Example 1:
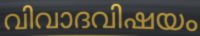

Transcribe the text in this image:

വിവാദവിഷയം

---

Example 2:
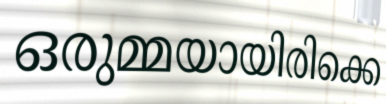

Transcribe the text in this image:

ഒരുമ്മയായിരിക്കെ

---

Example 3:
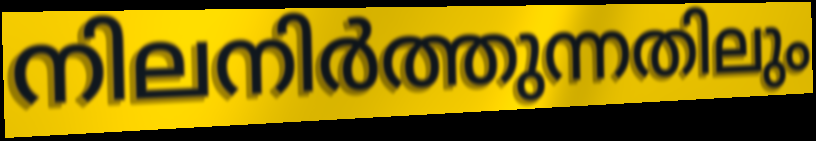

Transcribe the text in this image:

നിലനിർത്തുന്നതിലും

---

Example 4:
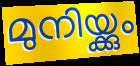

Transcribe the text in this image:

മുനിയ്ക്കും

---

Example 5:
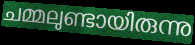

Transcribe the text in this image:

ചമ്മലുണ്ടായിരുന്നു